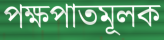
পক্ষপাতমূলক